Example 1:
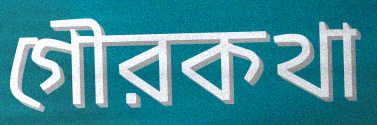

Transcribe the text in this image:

গৌরকথা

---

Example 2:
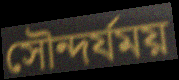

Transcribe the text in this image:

সৌন্দর্যময়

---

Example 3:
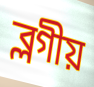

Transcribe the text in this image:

ব্লগীয়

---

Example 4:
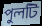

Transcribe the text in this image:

পুলটি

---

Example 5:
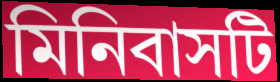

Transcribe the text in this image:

মিনিবাসটি